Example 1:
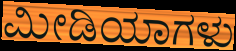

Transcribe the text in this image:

ಮೀಡಿಯಾಗಳು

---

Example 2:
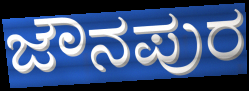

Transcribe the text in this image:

ಜೌನಪುರ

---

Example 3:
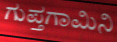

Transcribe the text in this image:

ಗುಪ್ತಗಾಮಿನಿ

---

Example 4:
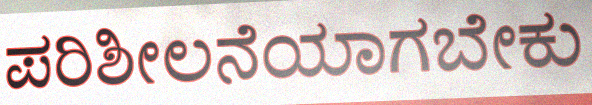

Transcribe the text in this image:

ಪರಿಶೀಲನೆಯಾಗಬೇಕು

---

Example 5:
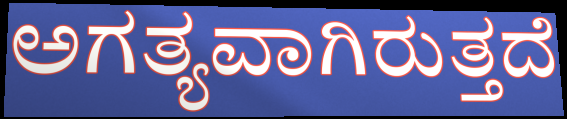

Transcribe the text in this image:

ಅಗತ್ಯವಾಗಿರುತ್ತದೆ